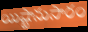
యిష్టానుసారం